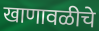
खाणावळीचे